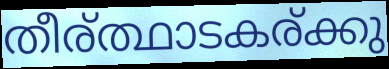
തീര്ത്ഥാടകര്ക്കു